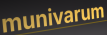
munivarum